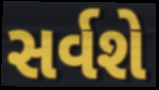
સર્વશે